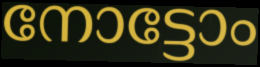
നോട്ടോം